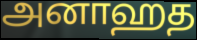
அனாஹத